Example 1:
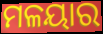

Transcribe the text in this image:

ମଳୟାର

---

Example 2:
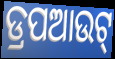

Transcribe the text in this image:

ଡ୍ରପଆଉଟ୍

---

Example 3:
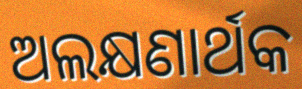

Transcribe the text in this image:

ଅଲକ୍ଷଣାର୍ଥକ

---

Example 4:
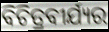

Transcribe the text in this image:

ବିଚିତ୍ରବୀର୍ଯ୍ୟର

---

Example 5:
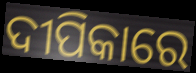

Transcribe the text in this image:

ଦୀପିକାରେ